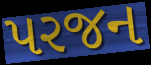
પરજન